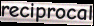
reciprocal